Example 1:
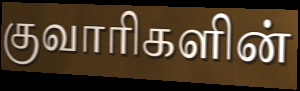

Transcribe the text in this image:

குவாரிகளின்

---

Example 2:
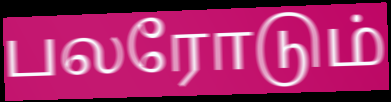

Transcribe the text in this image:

பலரோடும்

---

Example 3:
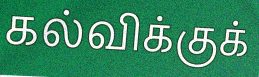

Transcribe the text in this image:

கல்விக்குக்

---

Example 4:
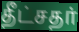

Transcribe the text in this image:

தீட்சதர்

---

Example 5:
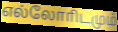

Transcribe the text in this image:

எல்லோரிடமும்